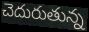
చెదురుతున్న